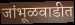
जांभूळवाडीत